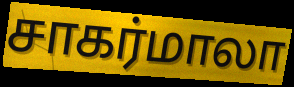
சாகர்மாலா